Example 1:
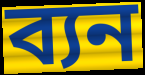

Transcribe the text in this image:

ব্যন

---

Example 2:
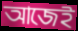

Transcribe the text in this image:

আজেই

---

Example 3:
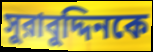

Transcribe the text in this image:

সুরাবুদ্দিনকে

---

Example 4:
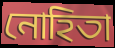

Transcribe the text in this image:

নোহিতা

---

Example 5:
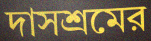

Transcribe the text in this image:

দাসশ্রমের